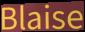
Blaise